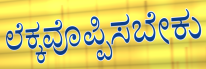
ಲೆಕ್ಕವೊಪ್ಪಿಸಬೇಕು